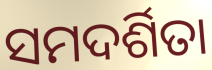
ସମଦର୍ଶିତା